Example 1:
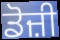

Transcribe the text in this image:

ਡੋਜ਼ੀ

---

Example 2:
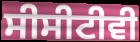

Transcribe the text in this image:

ਸੀਸੀਟੀਵੀ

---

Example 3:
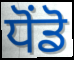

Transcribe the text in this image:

ਧੋਂਡੋ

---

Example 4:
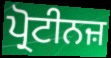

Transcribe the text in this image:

ਪ੍ਰੋਟੀਨਜ਼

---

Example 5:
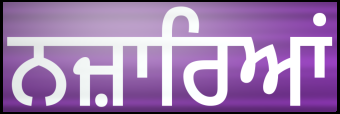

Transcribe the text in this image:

ਨਜ਼ਾਰਿਆਂ